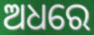
ଅଧରେ